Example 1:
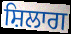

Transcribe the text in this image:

ਸ਼ਿਲਾਗ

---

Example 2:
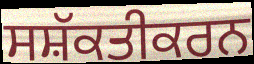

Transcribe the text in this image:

ਸਸ਼ੱਕਤੀਕਰਨ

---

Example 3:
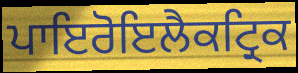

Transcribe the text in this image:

ਪਾਇਰੋਇਲੈਕਟ੍ਰਿਕ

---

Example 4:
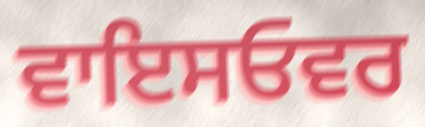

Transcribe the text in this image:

ਵਾਇਸਓਵਰ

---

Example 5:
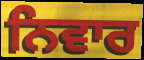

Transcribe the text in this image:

ਨਿਵਾਰ